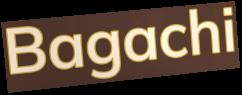
Bagachi